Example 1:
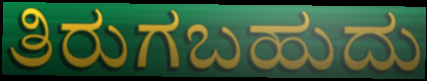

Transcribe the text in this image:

ತಿರುಗಬಹುದು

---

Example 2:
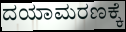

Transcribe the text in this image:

ದಯಾಮರಣಕ್ಕೆ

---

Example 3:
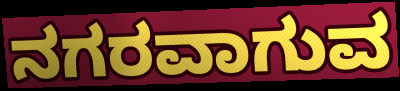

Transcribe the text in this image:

ನಗರವಾಗುವ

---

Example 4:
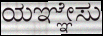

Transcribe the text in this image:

ಯಞ್ಞೇಸು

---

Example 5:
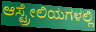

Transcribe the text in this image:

ಆಸ್ಟ್ರೇಲಿಯಗಳಲ್ಲಿ